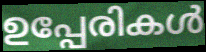
ഉപ്പേരികൾ